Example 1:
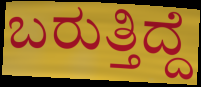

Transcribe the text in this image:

ಬರುತ್ತಿದ್ದೆ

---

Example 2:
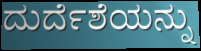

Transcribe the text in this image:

ದುರ್ದೆಶೆಯನ್ನು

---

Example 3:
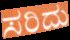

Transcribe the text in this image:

ಸರಿದು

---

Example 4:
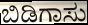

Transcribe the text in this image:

ಬಿಡಿಗಾಸು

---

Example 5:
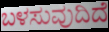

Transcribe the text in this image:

ಬಳಸುವುದಿದೆ